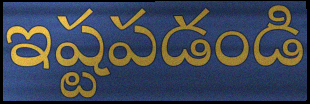
ఇష్టపడండి